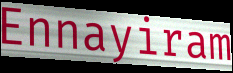
Ennayiram